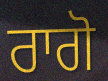
ਰਾਗੋ